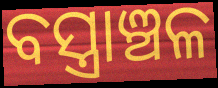
ବସ୍ତ୍ରାଞ୍ଚଳ